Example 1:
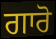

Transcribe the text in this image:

ਗਾਰੋ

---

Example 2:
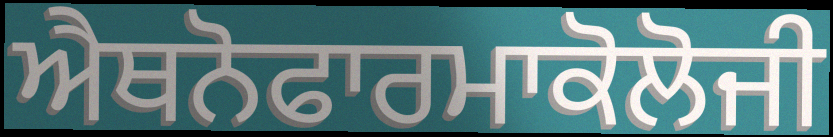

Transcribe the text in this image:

ਐਥਨੋਫਾਰਮਾਕੋਲੋਜੀ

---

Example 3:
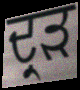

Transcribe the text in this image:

ਦ੍ਰੜ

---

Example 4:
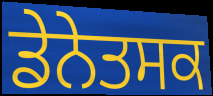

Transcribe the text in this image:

ਡੇਨੇਤਸਕ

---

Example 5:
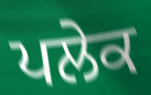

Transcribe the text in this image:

ਪਲੇਕ